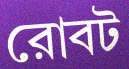
রোবট